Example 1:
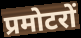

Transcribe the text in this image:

प्रमोटरों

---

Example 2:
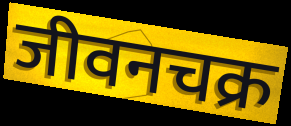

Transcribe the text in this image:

जीवनचक्र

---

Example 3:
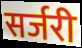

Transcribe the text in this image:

सर्जरी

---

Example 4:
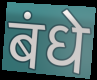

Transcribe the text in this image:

बंधे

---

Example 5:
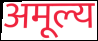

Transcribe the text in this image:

अमूल्‍य